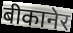
बीकानेर